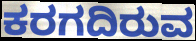
ಕರಗದಿರುವ